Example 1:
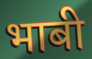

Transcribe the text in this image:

भाबी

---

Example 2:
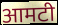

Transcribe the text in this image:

आमटी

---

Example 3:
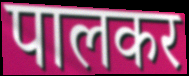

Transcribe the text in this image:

पालकर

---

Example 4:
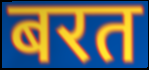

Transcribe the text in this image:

बरत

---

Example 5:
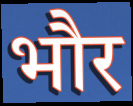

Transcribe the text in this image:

भौर